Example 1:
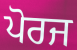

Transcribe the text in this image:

ਪੋਰਜ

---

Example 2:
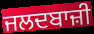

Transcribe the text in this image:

ਜਲਦਬਾਜ਼ੀ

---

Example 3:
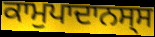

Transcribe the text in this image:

ਕਾਮੁਪਾਦਾਨਸ੍ਸ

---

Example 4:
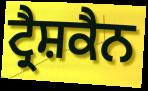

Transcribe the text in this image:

ਟ੍ਰੈਸ਼ਕੈਨ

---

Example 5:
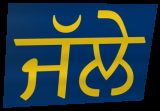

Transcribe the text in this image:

ਜੱਲੇ